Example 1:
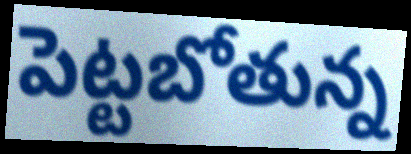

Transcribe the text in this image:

పెట్టబోతున్న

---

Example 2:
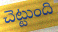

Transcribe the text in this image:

చెట్టుంది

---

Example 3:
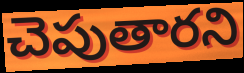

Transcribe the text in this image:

చెపుతారని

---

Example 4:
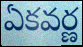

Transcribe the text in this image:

ఏకవర్ణ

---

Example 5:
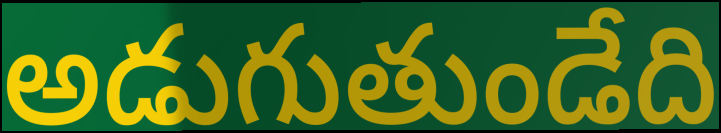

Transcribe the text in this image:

అడుగుతుండేది